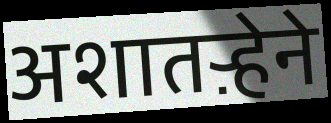
अशातऱ्‍हेने